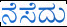
ನೆಸೆದು